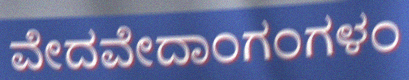
ವೇದವೇದಾಂಗಂಗಳಂ